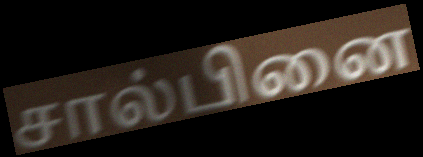
சால்பினை